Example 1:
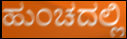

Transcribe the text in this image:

ಹುಂಚದಲ್ಲಿ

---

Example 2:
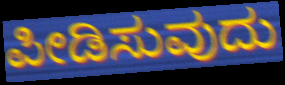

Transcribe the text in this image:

ಪೀಡಿಸುವುದು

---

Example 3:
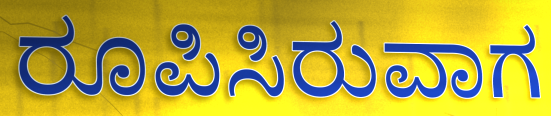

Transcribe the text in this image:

ರೂಪಿಸಿರುವಾಗ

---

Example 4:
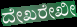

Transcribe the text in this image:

ದೇಖರೇಖೀ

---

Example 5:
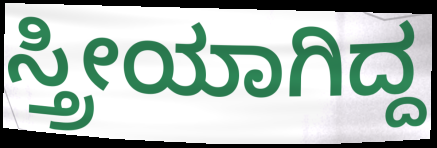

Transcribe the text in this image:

ಸ್ತ್ರೀಯಾಗಿದ್ದ